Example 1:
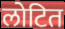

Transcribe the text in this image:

लोटित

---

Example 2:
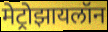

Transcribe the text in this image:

मेट्रोझायलॉन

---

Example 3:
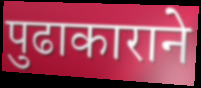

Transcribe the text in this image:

पुढाकाराने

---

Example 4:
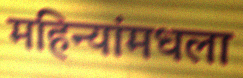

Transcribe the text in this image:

महिन्यांमधला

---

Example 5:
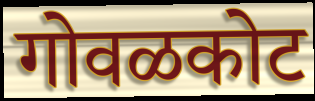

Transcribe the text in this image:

गोवळकोट